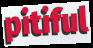
pitiful